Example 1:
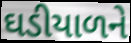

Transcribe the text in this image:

ઘડીયાળને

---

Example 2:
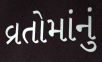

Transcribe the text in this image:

વ્રતોમાંનું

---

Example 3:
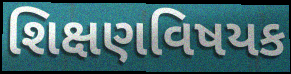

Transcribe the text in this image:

શિક્ષણવિષયક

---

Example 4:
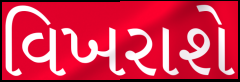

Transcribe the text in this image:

વિખરાશે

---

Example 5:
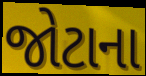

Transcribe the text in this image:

જોટાના